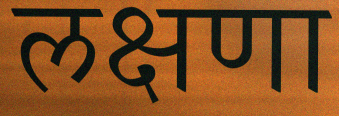
लक्षणा